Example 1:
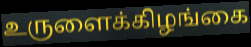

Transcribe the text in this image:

உருளைக்கிழங்கை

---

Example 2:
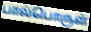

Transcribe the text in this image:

பால்பொருள்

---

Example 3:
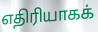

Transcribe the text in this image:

எதிரியாகக்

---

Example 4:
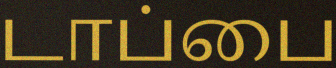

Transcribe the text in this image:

டாப்பை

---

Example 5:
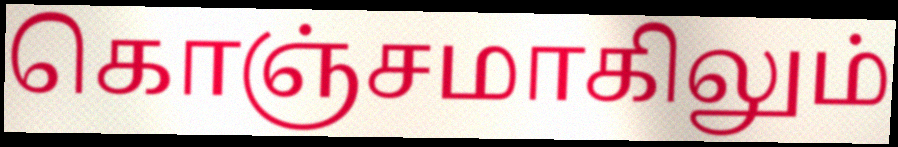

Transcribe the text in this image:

கொஞ்சமாகிலும்